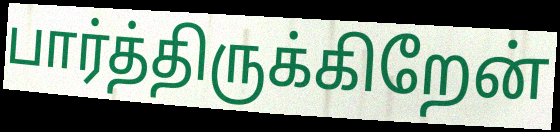
பார்த்திருக்கிறேன்